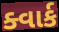
ક્વાર્ક